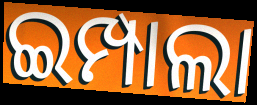
ଇମ୍ପାଲା